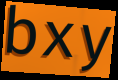
bxy